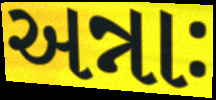
અન્નાઃ